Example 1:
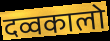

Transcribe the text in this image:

दव्वकालो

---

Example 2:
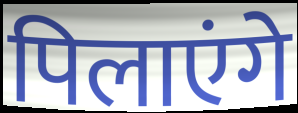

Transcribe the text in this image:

पिलाएंगे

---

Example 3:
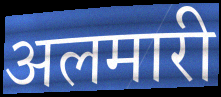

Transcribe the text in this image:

अलमारी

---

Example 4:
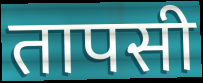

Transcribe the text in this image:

तापसी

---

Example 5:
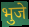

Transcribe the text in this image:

भुजे